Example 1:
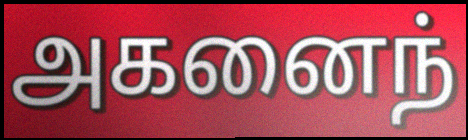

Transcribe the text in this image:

அகனைந்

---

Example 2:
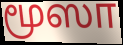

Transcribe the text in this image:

மூஸா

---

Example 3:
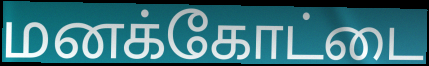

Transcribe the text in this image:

மனக்கோட்டை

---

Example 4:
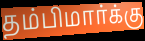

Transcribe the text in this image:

தம்பிமார்க்கு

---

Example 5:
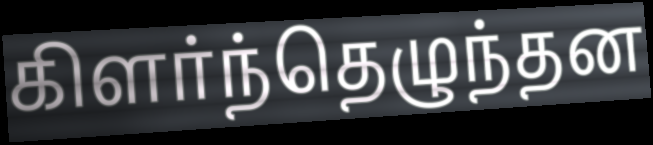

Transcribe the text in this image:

கிளர்ந்தெழுந்தன